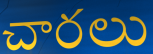
చారలు